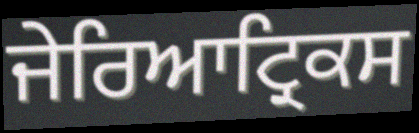
ਜੇਰਿਆਟ੍ਰਿਕਸ